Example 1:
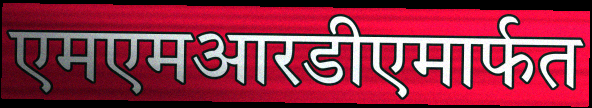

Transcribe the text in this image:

एमएमआरडीएमार्फत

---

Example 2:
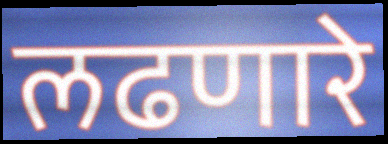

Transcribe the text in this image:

लढणारे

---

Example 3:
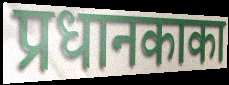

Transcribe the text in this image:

प्रधानकाका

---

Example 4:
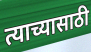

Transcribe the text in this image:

त्याच्यासाठी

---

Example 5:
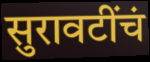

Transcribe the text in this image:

सुरावटींचं